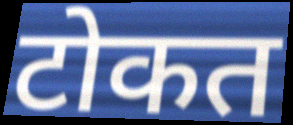
टोकत